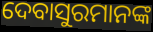
ଦେବାସୁରମାନଙ୍କ